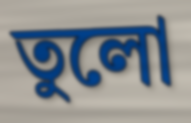
তুলো